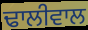
ਢਾਲੀਵਾਲ